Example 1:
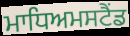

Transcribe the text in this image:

ਮਾਧਿਅਮਸਟੈਂਡ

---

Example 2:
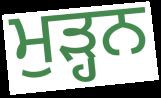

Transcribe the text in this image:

ਮੁੜ੍ਹਨ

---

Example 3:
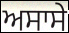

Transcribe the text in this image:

ਅਸਾਸੇ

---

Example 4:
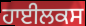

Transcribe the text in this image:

ਹਾਈਲਕਸ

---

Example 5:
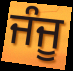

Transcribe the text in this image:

ਜੰਜੂ